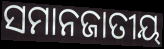
ସମାନଜାତୀୟ